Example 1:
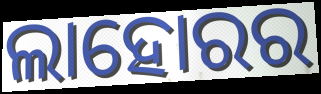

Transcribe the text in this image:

ଲାହୋରର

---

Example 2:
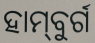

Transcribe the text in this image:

ହାମ୍‌ବୁର୍ଗ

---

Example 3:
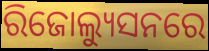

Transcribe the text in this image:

ରିଜୋଲ୍ୟୁସନରେ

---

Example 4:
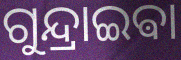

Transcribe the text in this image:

ଗୁନ୍ଦ୍ରାଇଵା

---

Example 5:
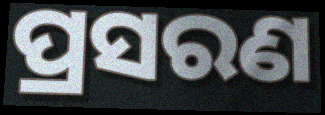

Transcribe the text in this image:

ପ୍ରସରଣ